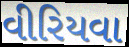
વીરિયવા